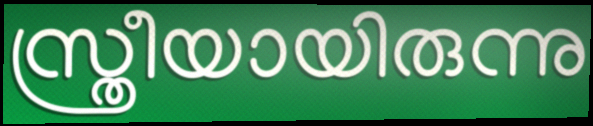
സ്ത്രീയായിരുന്നു